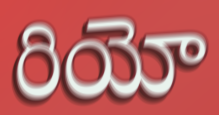
రియో